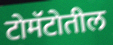
टोमॅटोतील